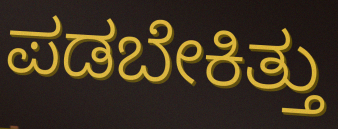
ಪಡಬೇಕಿತ್ತು